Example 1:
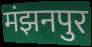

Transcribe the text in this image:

मंझनपुर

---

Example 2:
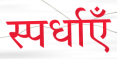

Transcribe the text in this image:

स्पर्धाएँ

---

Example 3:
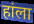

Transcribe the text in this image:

हांला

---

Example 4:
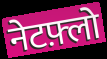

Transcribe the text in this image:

नेटफ़्लो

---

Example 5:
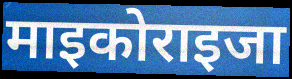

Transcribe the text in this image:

माइकोराइजा